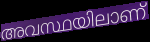
അവസ്ഥയിലാണ്